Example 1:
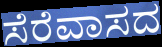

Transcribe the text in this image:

ಸೆರೆವಾಸದ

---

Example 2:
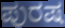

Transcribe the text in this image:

ಪುರಷ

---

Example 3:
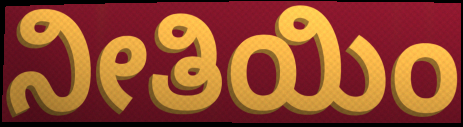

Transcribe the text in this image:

ನೀತಿಯಿಂ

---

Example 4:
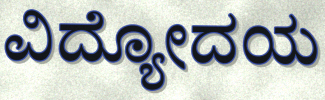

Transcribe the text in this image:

ವಿದ್ಯೋದಯ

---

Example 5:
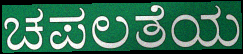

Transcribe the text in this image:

ಚಪಲತೆಯ